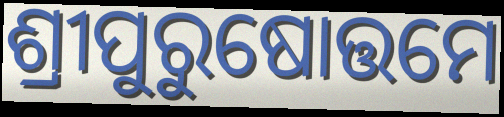
ଶ୍ରୀପୁରୁଷୋତ୍ତମେ